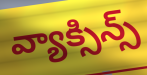
వ్యాక్సిన్స్